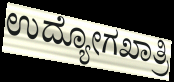
ಉದ್ಯೋಗಖಾತ್ರಿ